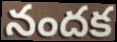
నందక